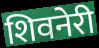
शिवनेरी